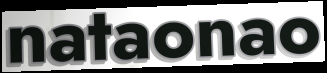
nataonao